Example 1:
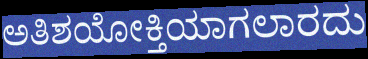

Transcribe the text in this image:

ಅತಿಶಯೋಕ್ತಿಯಾಗಲಾರದು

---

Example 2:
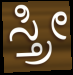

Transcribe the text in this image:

ಸ್ತ್ರೀ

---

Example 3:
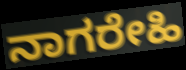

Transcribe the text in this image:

ನಾಗರೇಹಿ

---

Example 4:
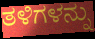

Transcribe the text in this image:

ತಳಿಗಳನ್ನು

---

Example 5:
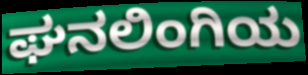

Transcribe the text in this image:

ಘನಲಿಂಗಿಯ